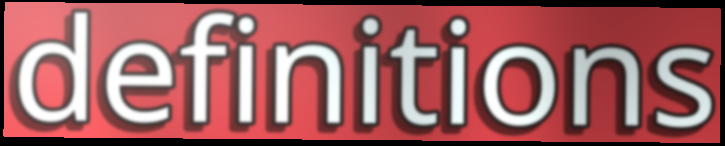
definitions